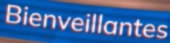
Bienveillantes